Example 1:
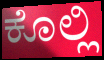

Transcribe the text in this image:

ಕೊಲ್ಲಿ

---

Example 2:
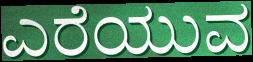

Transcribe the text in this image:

ಎರೆಯುವ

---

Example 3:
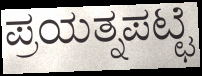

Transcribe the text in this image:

ಪ್ರಯತ್ನಪಟ್ಟೆ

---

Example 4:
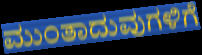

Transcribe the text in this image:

ಮುಂತಾದುವುಗಳಿಗೆ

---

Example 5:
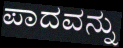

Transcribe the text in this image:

ಪಾದವನ್ನು